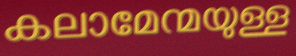
കലാമേന്മയുള്ള